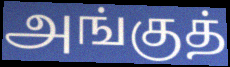
அங்குத்